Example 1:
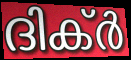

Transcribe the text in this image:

ദിക്ർ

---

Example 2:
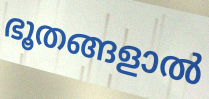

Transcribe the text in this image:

ഭൂതങ്ങളാൽ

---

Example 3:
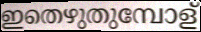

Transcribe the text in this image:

ഇതെഴുതുമ്പോള്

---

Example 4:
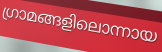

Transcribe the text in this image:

ഗ്രാമങ്ങളിലൊന്നായ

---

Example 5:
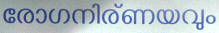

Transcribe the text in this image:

രോഗനിര്ണയവും